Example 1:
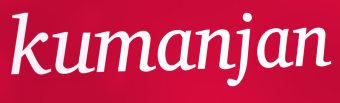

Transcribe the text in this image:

kumanjan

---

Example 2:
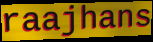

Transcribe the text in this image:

raajhans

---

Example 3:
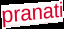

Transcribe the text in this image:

pranati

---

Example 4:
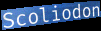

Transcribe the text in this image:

Scoliodon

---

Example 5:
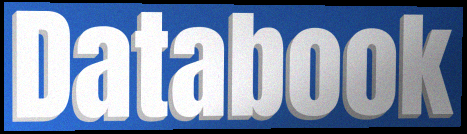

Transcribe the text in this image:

Databook